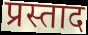
प्रस्ताद